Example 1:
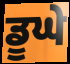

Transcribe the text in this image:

ਡੂਘੇ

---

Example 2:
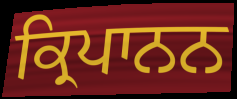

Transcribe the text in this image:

ਕ੍ਰਿਪਾਨਨ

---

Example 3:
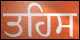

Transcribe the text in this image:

ਤਹਿਸ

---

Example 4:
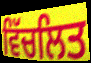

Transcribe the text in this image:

ਵਿੱਚਲਿਤ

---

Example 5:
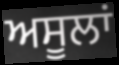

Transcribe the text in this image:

ਅਸੂਲਾਂ